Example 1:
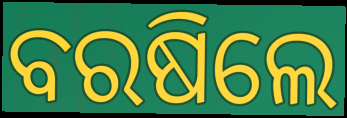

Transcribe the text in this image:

ବରଷିଲେ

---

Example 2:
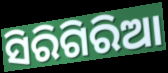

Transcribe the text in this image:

ସିରିଗିରିଆ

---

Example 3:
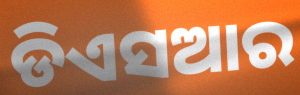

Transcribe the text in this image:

ଡିଏସଆର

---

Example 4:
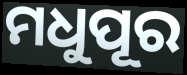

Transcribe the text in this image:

ମଧୁପୂର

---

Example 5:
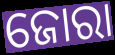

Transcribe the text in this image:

ଜୋରା